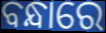
ବନ୍ଧାରେ